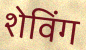
शेविंग